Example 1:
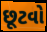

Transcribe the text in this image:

છૂટવો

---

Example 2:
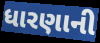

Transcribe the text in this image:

ધારણાની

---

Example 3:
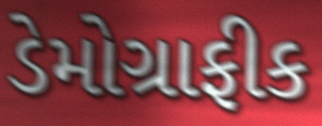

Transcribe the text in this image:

ડેમોગ્રાફીક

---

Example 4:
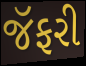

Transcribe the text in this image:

જૅફરી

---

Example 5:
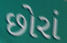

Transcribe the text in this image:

છોરાં